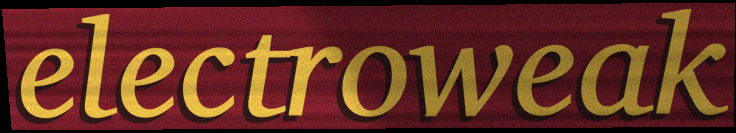
electroweak